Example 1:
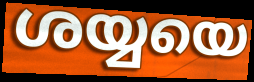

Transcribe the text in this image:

ശയ്യയെ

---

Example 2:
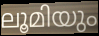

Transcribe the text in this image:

ലൂമിയും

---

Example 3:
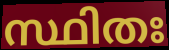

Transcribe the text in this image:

സ്ഥിതഃ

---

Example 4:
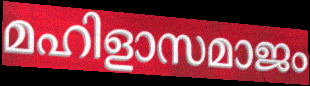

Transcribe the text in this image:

മഹിളാസമാജം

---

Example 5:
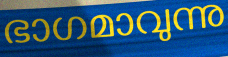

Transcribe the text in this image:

ഭാഗമാവുന്നു